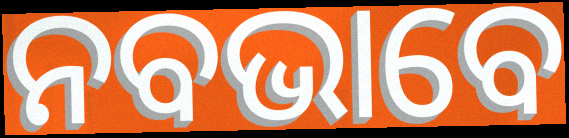
ନବଭାବେ